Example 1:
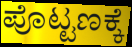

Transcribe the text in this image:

ಪೊಟ್ಟಣಕ್ಕೆ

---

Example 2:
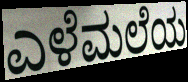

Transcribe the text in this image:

ಎಳೆಮಲೆಯ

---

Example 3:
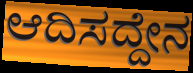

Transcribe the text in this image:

ಆದಿಸದ್ದೇನ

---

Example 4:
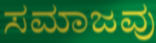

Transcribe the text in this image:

ಸಮಾಜವು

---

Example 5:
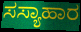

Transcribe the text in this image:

ಸಸ್ಯಾಹಾರ